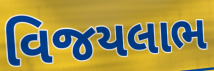
વિજયલાભ